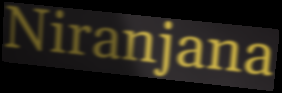
Niranjana